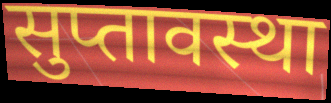
सुप्तावस्था